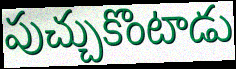
పుచ్చుకొంటాడు